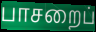
பாசறைப்